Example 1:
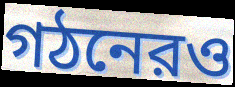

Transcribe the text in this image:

গঠনেরও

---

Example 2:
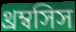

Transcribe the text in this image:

থ্রম্বসিস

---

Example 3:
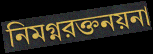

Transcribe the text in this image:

নিমগ্নরক্তনয়না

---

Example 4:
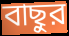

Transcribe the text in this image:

বাছুর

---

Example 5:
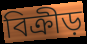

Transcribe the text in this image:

বিক্রীড়